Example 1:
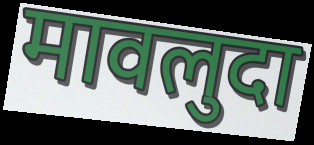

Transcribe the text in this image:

मावलुदा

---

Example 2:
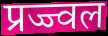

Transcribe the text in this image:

प्रज्ज्वल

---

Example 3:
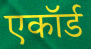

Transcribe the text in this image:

एकॉर्ड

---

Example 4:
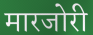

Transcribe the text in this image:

मारजोरी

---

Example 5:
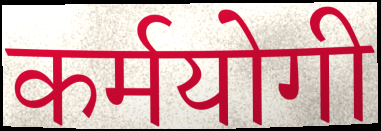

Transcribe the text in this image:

कर्मयोगी